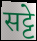
सट्टे